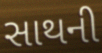
સાથની